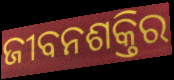
ଜୀବନଶକ୍ତିର